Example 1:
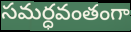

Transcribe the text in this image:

సమర్ధవంతంగా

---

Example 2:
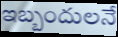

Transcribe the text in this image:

ఇబ్బందులనే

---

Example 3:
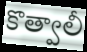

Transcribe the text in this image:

కొత్వాలీ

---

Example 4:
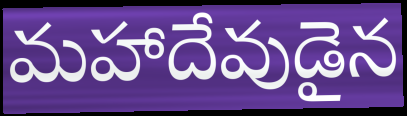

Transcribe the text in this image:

మహాదేవుడైన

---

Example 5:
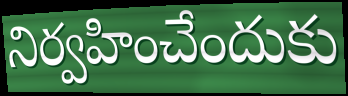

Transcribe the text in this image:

నిర్వహించేందుకు